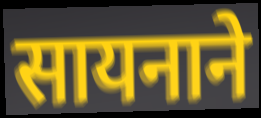
सायनाने